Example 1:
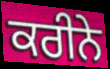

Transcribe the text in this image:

ਕਰੀਨੇ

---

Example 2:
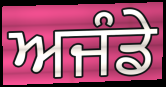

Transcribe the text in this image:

ਅਜੰਡੇ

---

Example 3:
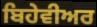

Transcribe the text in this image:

ਬਿਹੇਵੀਅਰ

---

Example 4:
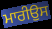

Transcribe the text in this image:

ਮਾਰੀਉਸ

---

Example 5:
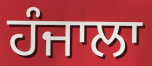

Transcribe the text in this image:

ਹੰਜਾਲਾ